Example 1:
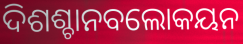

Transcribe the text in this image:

ଦିଶଶ୍ଚାନବଲୋକୟନ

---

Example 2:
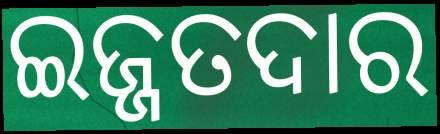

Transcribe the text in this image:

ଇଜ୍ଜତଦାର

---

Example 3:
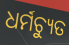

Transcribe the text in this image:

ଧର୍ମଚ୍ୟୁତ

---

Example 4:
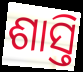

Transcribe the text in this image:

ଶାସ୍ତି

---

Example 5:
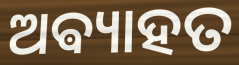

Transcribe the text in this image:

ଅଵ୍ୟାହତ